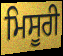
ਮਿਸੂਰੀ